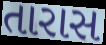
તારાસ